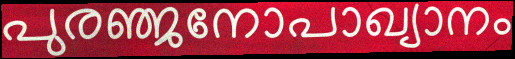
പുരഞ്ജനോപാഖ്യാനം